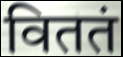
विततं